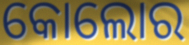
କୋଲୋର